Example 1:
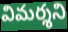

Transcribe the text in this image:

విమర్శని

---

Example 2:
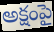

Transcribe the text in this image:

అక్షంపై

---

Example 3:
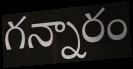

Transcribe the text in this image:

గన్నారం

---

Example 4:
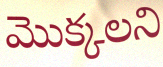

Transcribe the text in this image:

మొక్కలని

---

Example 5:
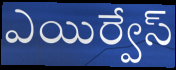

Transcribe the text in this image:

ఎయిర్వేస్